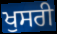
ਖੁਸਰੀ